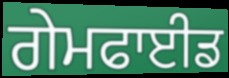
ਗੇਮਫਾਈਡ